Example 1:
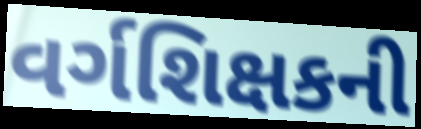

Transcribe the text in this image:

વર્ગશિક્ષકની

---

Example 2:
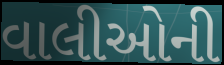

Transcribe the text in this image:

વાલીઓની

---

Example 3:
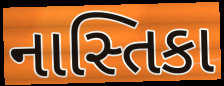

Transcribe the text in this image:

નાસ્તિકા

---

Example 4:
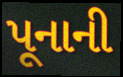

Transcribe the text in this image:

પૂનાની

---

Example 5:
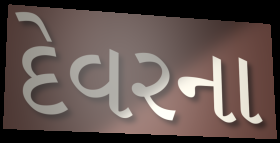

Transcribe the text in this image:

દેવરના